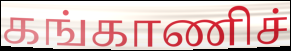
கங்காணிச்